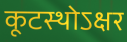
कूटस्थोऽक्षर